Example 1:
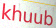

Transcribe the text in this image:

khuub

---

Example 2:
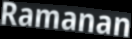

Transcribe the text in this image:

Ramanan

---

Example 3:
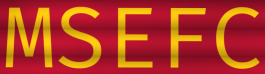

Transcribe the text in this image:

MSEFC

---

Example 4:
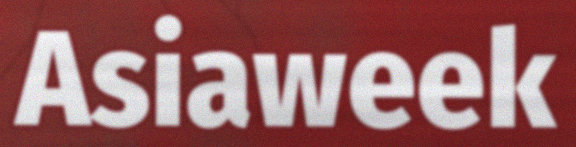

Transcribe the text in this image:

Asiaweek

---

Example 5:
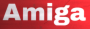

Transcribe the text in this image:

Amiga